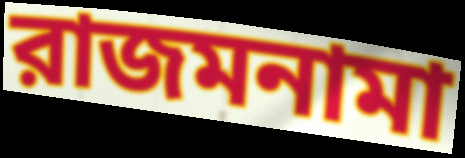
রাজমনামা